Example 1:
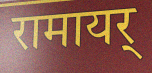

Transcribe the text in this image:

रामायर्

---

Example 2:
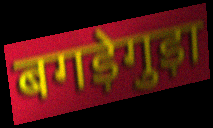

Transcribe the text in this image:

बगड़ेगुड़ा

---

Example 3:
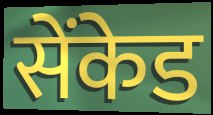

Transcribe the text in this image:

सेंकेड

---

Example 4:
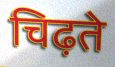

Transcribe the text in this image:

चिढ़ते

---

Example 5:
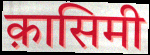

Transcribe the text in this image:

क़ासिमी